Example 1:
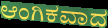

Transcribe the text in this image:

ಆಂಗಿಕವಾದ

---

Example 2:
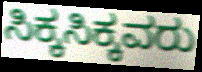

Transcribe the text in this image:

ಸಿಕ್ಕಸಿಕ್ಕವರು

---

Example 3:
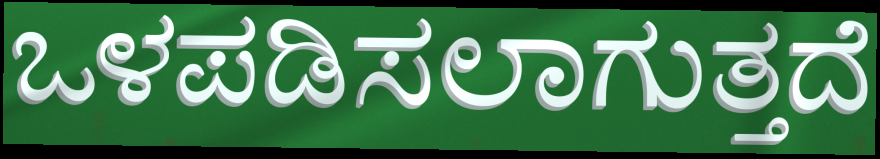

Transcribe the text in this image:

ಒಳಪಡಿಸಲಾಗುತ್ತದೆ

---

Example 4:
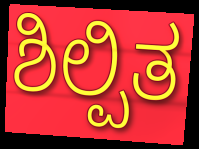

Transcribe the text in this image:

ಶಿಲ್ಪಿತ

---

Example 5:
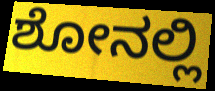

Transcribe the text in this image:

ಶೋನಲ್ಲಿ